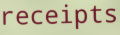
receipts